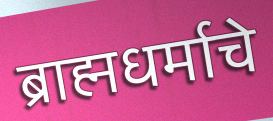
ब्राह्मधर्माचे